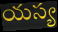
యస్య